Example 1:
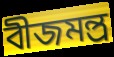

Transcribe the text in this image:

বীজমন্ত্ৰ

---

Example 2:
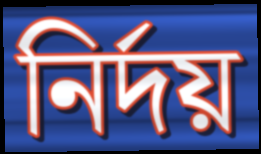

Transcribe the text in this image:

নিৰ্দয়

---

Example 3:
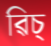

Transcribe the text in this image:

ৱিচ্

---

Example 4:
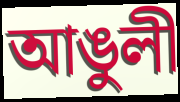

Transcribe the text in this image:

আঙুলী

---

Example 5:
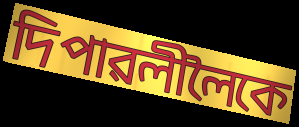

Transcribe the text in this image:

দিপাৱলীলৈকে